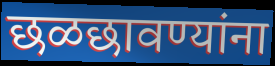
छळछावण्यांना